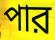
পার